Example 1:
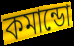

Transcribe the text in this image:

কমান্ডো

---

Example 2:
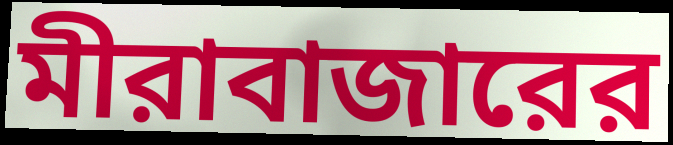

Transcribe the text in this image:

মীরাবাজারের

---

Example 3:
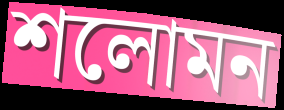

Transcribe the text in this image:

শলোমন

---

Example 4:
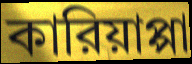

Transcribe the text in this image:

কারিয়াপ্পা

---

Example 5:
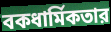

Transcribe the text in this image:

বকধার্মিকতার